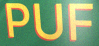
PUF